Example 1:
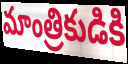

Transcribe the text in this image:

మాంత్రికుడికి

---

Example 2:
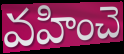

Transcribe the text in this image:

వహించె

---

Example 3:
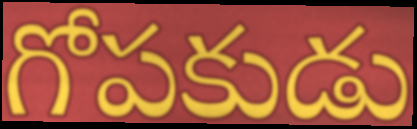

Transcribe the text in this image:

గోపకుడు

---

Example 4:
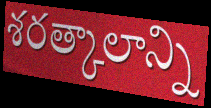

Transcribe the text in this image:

శరత్కాలాన్ని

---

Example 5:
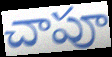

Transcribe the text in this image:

చాపూ